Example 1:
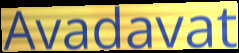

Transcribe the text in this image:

Avadavat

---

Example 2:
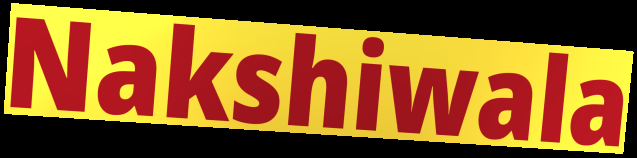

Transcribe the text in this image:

Nakshiwala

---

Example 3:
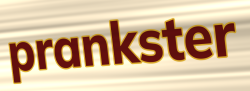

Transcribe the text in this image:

prankster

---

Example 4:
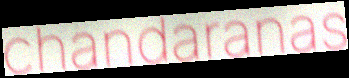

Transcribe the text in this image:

chandaranas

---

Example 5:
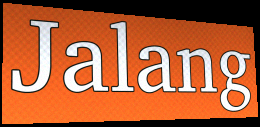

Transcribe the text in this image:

Jalang